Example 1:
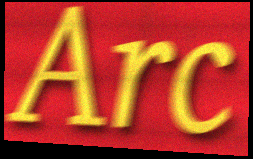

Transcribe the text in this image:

Arc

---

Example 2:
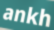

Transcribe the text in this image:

ankh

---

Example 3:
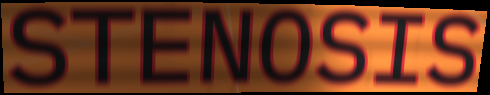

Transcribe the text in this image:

STENOSIS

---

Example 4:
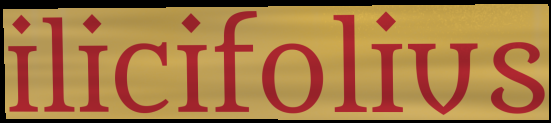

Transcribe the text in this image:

ilicifolius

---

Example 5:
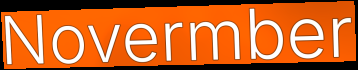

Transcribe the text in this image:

Novermber